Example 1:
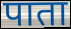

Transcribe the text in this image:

पाता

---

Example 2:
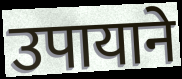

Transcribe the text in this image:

उपायाने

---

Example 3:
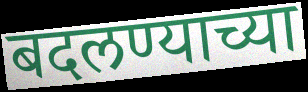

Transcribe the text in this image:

बदलण्याच्या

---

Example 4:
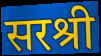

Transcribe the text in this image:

सरश्री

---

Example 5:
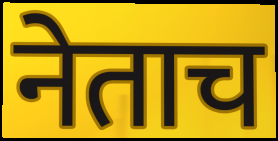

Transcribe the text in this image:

नेताच